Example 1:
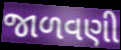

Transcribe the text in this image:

જાળવણી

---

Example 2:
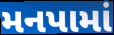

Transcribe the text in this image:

મનપામાં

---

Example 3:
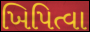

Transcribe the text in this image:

ખિપિત્વા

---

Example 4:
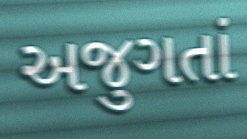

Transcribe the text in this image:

અજુગતાં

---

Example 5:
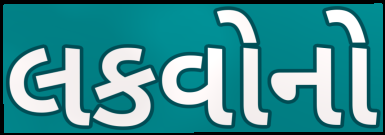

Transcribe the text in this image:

લકવોનો